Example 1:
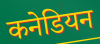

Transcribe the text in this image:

कनेडियन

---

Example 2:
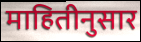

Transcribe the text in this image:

माहितीनुसार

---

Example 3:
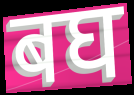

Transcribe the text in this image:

बघ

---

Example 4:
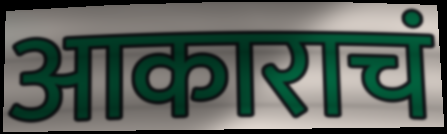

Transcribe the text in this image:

आकाराचं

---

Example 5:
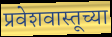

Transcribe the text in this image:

प्रवेशवास्तूच्या